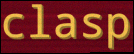
clasp